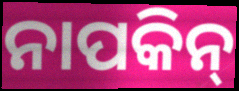
ନାପକିନ୍